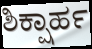
ಶಿಕ್ಷಾರ್ಹ